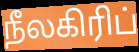
நீலகிரிப்